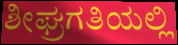
ಶೀಘ್ರಗತಿಯಲ್ಲಿ